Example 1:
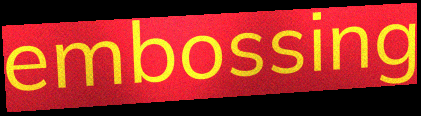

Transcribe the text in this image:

embossing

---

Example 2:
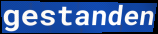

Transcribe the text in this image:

gestanden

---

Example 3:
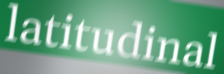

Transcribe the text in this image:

latitudinal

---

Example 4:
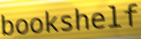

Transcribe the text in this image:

bookshelf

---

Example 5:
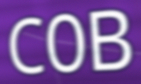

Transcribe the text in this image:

COB